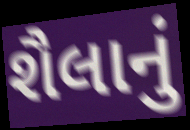
શૈલાનું